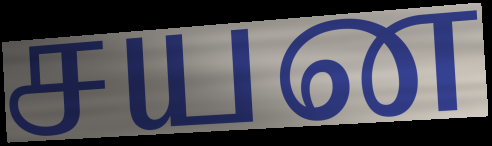
சயன